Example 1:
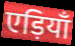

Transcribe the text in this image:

एड़ियाँ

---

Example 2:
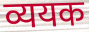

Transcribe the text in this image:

व्ययक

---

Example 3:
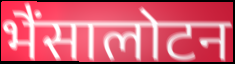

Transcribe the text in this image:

भैंसालोटन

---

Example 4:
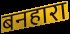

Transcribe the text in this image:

बनहारा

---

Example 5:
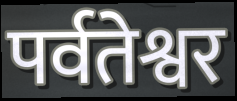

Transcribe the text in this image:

पर्वतेश्वर